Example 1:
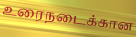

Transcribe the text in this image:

உரைநடைக்கான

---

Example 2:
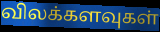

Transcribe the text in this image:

விலக்களவுகள்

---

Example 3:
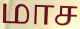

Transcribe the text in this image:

மாச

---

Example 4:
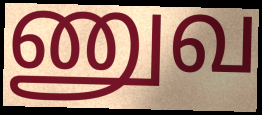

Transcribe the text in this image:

ணுவ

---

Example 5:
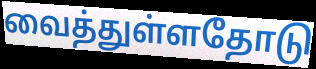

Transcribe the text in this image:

வைத்துள்ளதோடு